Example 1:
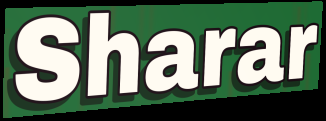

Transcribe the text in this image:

Sharar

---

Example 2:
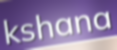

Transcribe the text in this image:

kshana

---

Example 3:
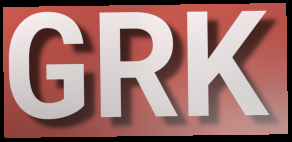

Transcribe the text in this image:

GRK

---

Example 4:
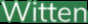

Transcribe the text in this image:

Witten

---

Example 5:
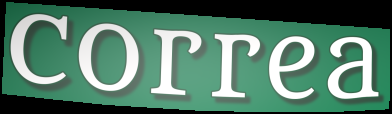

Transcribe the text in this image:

correa